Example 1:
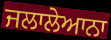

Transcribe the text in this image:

ਜਲਾਲੇਆਨਾ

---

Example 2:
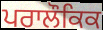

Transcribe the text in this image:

ਪਰਾਲੌਕਿਕ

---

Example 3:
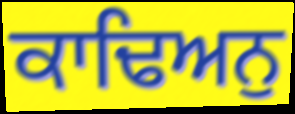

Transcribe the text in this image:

ਕਾਢਿਅਨੁ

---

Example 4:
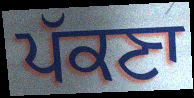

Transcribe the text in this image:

ਪੱਕਣਾ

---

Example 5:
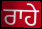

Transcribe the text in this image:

ਰਾਹੇ